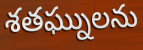
శతఘ్నులను